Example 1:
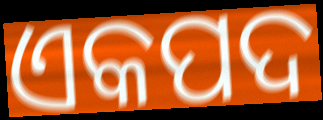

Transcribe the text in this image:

ଏକପଦ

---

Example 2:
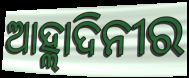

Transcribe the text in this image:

ଆହ୍ଲାଦିନୀର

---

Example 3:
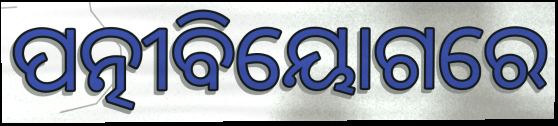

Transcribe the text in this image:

ପତ୍ନୀବିୟୋଗରେ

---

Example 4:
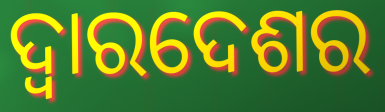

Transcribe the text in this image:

ଦ୍ୱାରଦେଶର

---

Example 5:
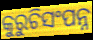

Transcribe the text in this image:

କୁରୁଚିସଂପନ୍ନ